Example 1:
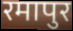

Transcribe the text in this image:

रमापुर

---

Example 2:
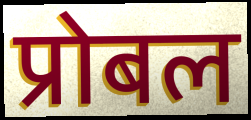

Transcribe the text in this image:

प्रोबल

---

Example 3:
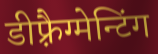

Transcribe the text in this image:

डीफ़्रैग्मेन्टिंग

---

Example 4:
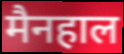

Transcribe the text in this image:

मैनहाल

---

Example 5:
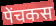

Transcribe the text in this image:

पेंचकस